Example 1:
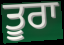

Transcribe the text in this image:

ਤੂਰਾ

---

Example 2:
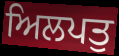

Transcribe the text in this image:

ਅਿਲਪਤੁ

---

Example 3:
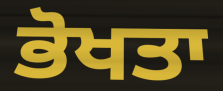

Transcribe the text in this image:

ਭੋਖਤਾ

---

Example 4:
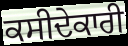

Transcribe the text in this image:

ਕਸੀਦੇਕਾਰੀ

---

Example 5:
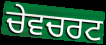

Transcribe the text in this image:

ਚੇਵਚਰਟ